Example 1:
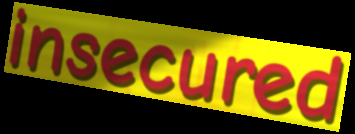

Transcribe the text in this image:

insecured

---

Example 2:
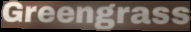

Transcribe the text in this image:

Greengrass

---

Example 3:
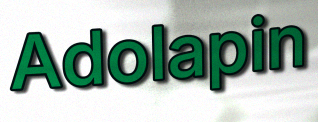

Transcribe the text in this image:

Adolapin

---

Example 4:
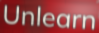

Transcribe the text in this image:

Unlearn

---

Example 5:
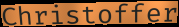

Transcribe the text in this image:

Christoffer